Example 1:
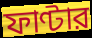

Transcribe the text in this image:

ফাণ্টার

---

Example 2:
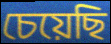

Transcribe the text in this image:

চেয়েছি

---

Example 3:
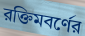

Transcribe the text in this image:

রক্তিমবর্ণের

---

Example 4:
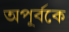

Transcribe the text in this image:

অপূর্বকে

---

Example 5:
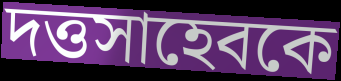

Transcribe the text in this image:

দত্তসাহেবকে